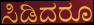
ಸಿಡಿದರೂ